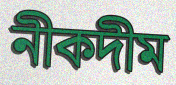
নীকদীম